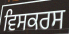
ਵਿਸਕਰਸ